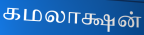
கமலாக்ஷன்